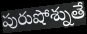
పురుషోశ్నుతే